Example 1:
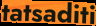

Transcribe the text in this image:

tatsaditi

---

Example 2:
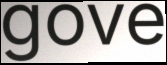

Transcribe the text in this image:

gove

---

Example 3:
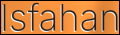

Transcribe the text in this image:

Isfahan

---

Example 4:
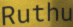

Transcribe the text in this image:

Ruthu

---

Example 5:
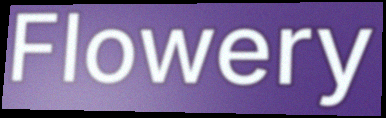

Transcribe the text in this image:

Flowery